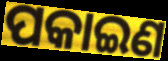
ପକାଇଣ